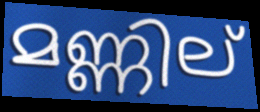
മണ്ണില്